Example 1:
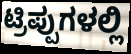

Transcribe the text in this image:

ಟ್ರಿಪ್ಪುಗಳಲ್ಲಿ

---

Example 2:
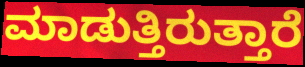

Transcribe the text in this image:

ಮಾಡುತ್ತಿರುತ್ತಾರೆ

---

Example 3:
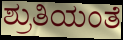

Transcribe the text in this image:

ಶ್ರುತಿಯಂತೆ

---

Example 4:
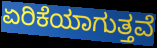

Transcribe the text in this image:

ಏರಿಕೆಯಾಗುತ್ತವೆ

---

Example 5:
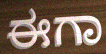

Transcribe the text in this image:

ಈಗಾ